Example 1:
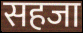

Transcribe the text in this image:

सहजा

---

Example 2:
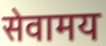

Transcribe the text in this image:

सेवामय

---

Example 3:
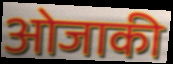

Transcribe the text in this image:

ओजाकी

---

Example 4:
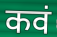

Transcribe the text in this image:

कवं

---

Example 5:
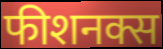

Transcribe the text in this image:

फीशनक्स